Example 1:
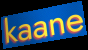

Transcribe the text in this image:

kaane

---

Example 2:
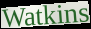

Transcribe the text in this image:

Watkins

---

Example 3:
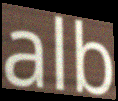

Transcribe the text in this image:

alb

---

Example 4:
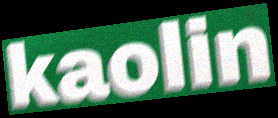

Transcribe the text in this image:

kaolin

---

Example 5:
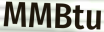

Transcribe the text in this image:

MMBtu